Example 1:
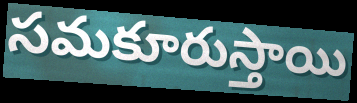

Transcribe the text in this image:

సమకూరుస్తాయి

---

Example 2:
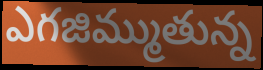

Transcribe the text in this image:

ఎగజిమ్ముతున్న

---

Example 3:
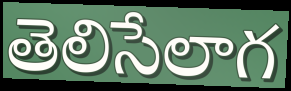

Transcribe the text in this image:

తెలిసేలాగ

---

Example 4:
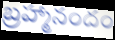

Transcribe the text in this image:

బ్రహ్మానందం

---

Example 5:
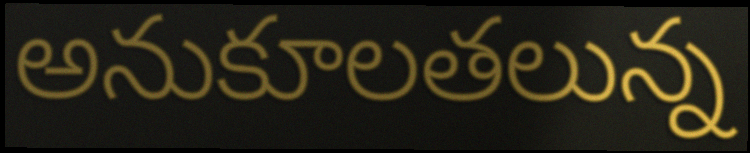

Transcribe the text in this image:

అనుకూలతలున్న